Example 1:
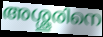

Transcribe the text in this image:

അശ്ശൂരിനെ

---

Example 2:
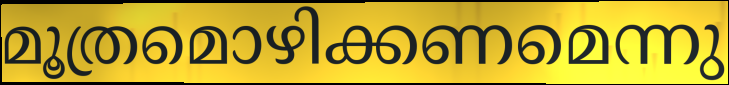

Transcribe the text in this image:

മൂത്രമൊഴിക്കണമെന്നു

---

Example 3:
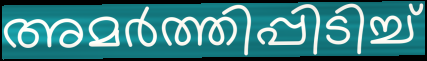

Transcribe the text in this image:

അമർത്തിപ്പിടിച്ച്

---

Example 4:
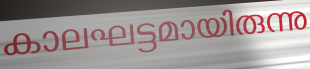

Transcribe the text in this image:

കാലഘട്ടമായിരുന്നു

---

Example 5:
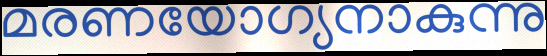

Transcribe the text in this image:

മരണയോഗ്യനാകുന്നു